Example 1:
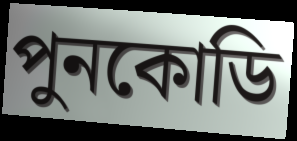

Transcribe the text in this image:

পুনকোডি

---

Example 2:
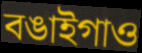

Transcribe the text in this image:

বঙাইগাও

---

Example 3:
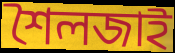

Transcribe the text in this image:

শৈলজাই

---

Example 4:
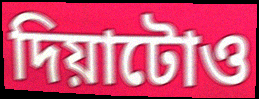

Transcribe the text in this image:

দিয়াটোও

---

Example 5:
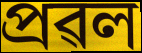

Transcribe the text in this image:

প্ৰৱল